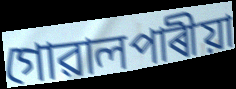
গোৱালপাৰীয়া